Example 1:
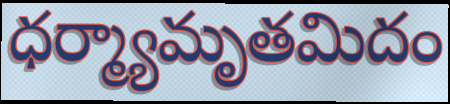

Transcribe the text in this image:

ధర్మ్యామృతమిదం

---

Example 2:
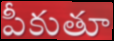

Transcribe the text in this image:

పీకుతూ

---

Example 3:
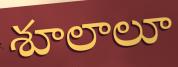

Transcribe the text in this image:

శూలాలూ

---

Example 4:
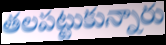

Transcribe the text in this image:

తలపట్టుకున్నారు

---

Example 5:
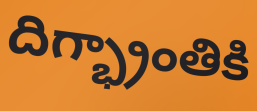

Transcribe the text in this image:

దిగ్భ్రాంతికి